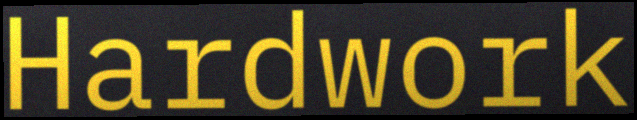
Hardwork